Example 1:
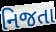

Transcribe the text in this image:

નિજતા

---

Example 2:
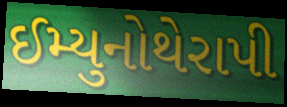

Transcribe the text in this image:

ઈમ્યુનોથેરાપી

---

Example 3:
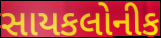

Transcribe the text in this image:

સાયકલોનીક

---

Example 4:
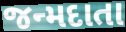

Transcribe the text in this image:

જન્મદાતા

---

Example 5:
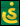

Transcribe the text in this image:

હં